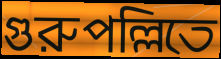
গুরুপল্লিতে